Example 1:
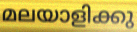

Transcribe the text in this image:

മലയാളിക്കു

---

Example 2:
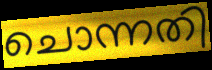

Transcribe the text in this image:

ചൊന്നതി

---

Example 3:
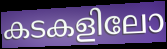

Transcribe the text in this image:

കടകളിലോ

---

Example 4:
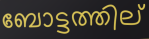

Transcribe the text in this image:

ബോട്ടത്തില്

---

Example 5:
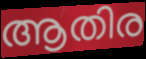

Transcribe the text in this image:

ആതിര